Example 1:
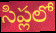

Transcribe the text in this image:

సిప్లలో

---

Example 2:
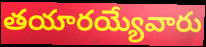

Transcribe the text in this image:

తయారయ్యేవారు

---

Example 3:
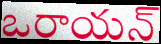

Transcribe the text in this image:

ఒరాయన్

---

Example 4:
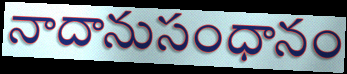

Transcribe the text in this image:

నాదానుసంధానం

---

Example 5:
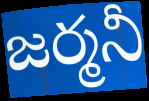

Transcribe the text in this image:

జర్మనీ